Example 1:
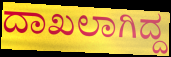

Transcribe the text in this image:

ದಾಖಲಾಗಿದ್ದ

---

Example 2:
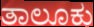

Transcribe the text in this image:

ತಾಲೂಕು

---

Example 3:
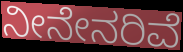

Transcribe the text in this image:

ನೀನೇನರಿವೆ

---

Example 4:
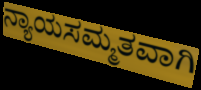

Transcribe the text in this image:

ನ್ಯಾಯಸಮ್ಮತವಾಗಿ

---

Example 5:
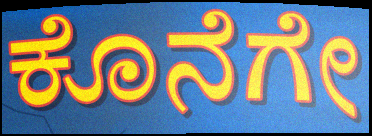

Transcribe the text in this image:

ಕೊನೆಗೇ